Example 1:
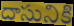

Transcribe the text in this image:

దాసునికి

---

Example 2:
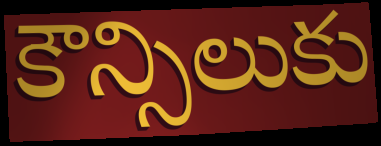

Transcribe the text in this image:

కౌన్సిలుకు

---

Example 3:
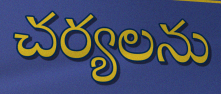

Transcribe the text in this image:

చర్యలను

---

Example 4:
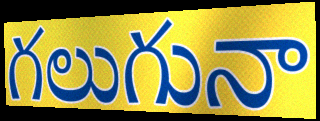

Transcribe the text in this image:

గలుగునా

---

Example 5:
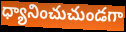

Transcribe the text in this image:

ధ్యానించుచుండగా